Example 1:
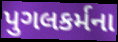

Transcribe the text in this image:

પુગલકર્મના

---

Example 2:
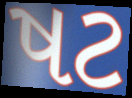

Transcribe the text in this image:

ષટ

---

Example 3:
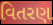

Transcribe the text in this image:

વિતરણ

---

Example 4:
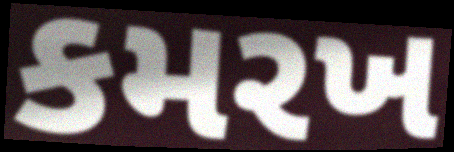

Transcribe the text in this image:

કમરખ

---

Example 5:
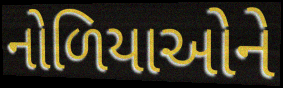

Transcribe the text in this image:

નોળિયાઓને